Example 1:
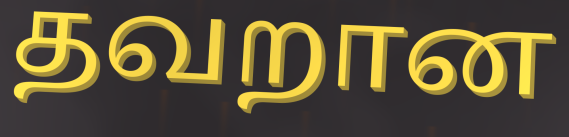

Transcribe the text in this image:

தவறான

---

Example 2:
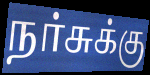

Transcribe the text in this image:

நர்சுக்கு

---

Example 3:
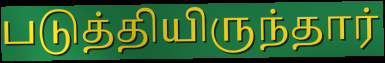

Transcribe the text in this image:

படுத்தியிருந்தார்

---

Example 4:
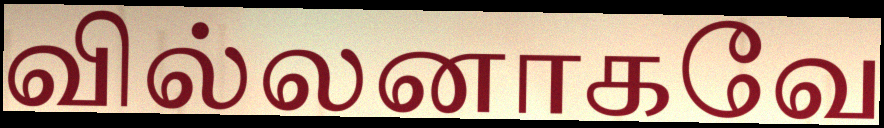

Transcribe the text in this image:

வில்லனாகவே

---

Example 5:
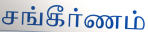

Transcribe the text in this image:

சங்கீர்ணம்